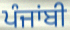
ਪੰਜਾਂਬੀ